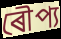
ৰৌপ্য